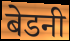
बेडनी